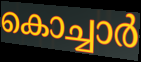
കൊച്ചാർ